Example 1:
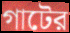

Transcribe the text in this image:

গাটের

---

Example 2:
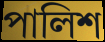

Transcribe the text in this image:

পালিশ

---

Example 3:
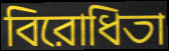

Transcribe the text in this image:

বিরোধিতা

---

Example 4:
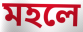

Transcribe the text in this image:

মহলে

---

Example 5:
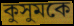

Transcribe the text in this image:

কুসুমকে